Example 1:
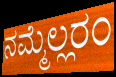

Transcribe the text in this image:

ನಮ್ಮೆಲ್ಲರಂ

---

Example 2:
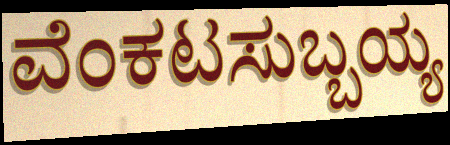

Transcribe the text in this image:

ವೆಂಕಟಸುಬ್ಬಯ್ಯ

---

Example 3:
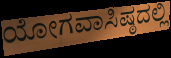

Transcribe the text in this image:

ಯೋಗವಾಸಿಷ್ಠದಲ್ಲಿ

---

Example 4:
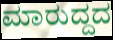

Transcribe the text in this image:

ಮಾರುದ್ದದ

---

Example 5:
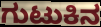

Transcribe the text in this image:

ಗುಟುಕಿನ